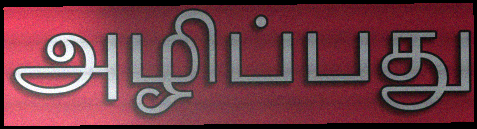
அழிப்பது